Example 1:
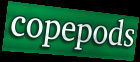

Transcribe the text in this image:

copepods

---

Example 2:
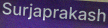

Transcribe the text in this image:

Surjaprakash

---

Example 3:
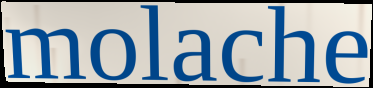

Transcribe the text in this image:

molache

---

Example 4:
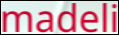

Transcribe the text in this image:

madeli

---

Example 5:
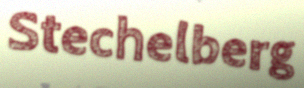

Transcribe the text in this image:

Stechelberg